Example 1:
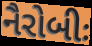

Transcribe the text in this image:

નૈરોબીઃ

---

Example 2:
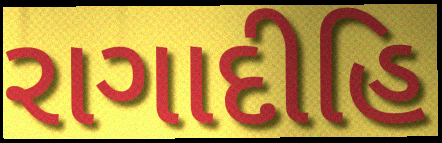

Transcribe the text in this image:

રાગાદીહિ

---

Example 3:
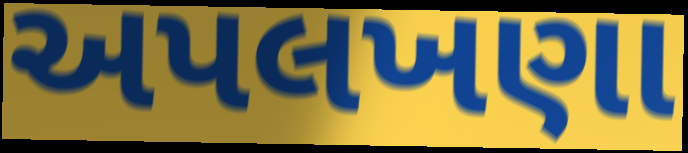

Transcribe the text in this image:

અપલખણા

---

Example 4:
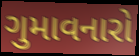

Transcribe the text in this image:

ગુમાવનારો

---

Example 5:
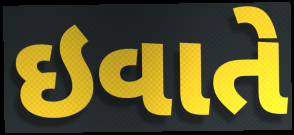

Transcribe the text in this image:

ઇવાતે